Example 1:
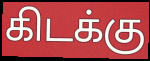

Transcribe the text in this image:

கிடக்கு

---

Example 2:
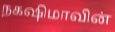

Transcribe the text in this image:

நகஷிமாவின்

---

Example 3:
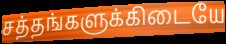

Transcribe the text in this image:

சத்தங்களுக்கிடையே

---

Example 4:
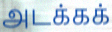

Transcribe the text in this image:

அடக்கக்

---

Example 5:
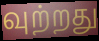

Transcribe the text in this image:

வுற்றது